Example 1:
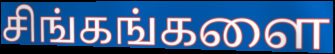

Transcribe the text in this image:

சிங்கங்களை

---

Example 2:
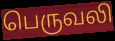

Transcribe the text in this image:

பெருவலி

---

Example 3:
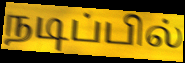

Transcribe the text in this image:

நடிப்பில்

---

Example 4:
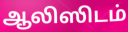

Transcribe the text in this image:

ஆலிஸிடம்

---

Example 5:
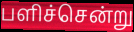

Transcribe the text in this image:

பளிச்சென்று